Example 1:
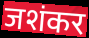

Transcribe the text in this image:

जशंकर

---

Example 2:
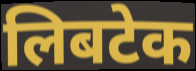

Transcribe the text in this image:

लिबटेक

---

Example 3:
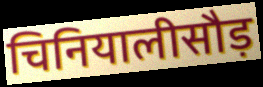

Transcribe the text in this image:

चिनियालीसौड़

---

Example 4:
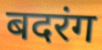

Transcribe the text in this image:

बदरंग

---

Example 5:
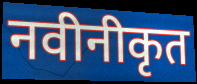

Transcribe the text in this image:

नवीनीकृत